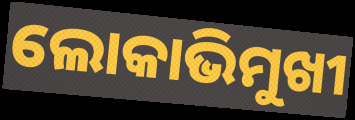
ଲୋକାଭିମୁଖୀ